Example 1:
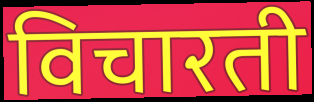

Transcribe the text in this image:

विचारती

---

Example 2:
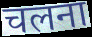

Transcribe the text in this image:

चलना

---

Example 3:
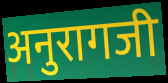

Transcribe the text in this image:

अनुरागजी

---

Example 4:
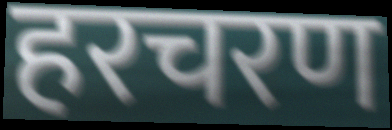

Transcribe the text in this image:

हरचरण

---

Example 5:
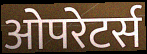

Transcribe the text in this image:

ओपरेटर्स